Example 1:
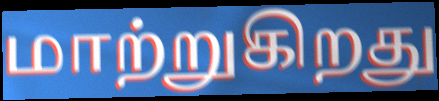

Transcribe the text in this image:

மாற்றுகிறது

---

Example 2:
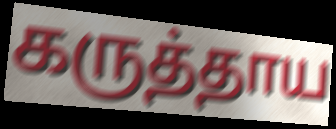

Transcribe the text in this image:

கருத்தாய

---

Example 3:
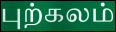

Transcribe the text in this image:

புற்கலம்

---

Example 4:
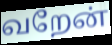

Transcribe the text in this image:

வறேன்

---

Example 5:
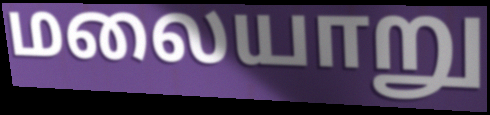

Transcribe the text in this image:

மலையாறு